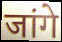
जांगे